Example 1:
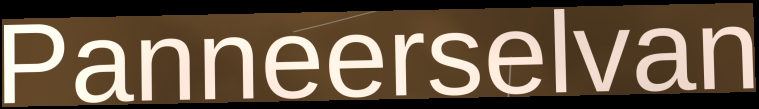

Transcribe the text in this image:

Panneerselvan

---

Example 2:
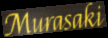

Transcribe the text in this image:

Murasaki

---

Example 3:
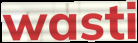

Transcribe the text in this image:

wasti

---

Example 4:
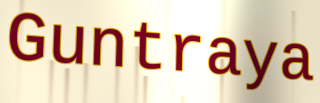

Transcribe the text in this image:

Guntraya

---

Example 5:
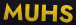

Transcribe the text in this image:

MUHS